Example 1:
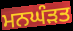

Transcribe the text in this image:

ਮਨਘੰੜਤ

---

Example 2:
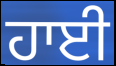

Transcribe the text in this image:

ਹਾਈ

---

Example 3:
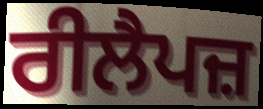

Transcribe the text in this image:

ਰੀਲੈਪਜ਼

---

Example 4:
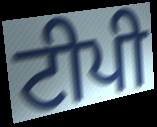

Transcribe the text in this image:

ਟੀਪੀ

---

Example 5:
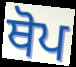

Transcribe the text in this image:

ਥੋਪ